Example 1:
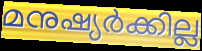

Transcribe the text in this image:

മനുഷ്യർക്കില്ല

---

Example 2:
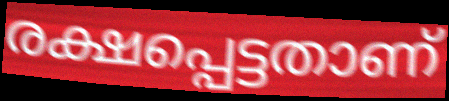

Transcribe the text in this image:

രക്ഷപ്പെട്ടതാണ്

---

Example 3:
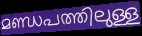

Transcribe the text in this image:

മണ്ഡപത്തിലുള്ള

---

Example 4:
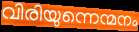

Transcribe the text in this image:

വിരിയുന്നെന്മനം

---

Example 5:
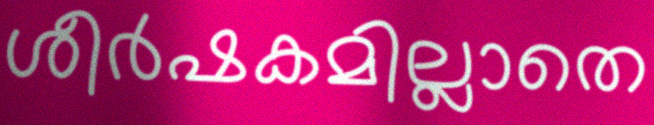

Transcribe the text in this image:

ശീർഷകമില്ലാതെ